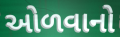
ઓળવાનો